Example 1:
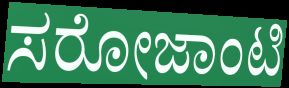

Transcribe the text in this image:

ಸರೋಜಾಂಟಿ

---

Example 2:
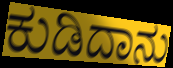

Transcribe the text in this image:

ಕುಡಿದಾನು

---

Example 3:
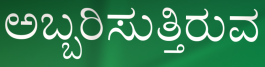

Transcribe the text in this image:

ಅಬ್ಬರಿಸುತ್ತಿರುವ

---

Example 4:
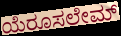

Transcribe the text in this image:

ಯೆರೂಸಲೇಮ್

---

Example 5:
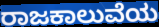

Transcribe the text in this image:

ರಾಜಕಾಲುವೆಯ